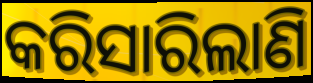
କରିସାରିଲାଣି